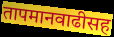
तापमानवाढीसह